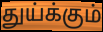
துய்க்கும்